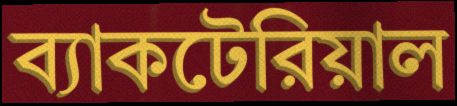
ব্যাকটেরিয়াল